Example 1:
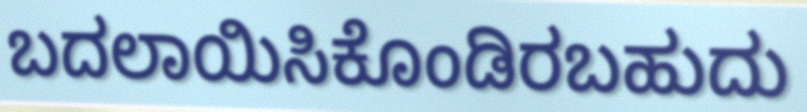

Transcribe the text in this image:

ಬದಲಾಯಿಸಿಕೊಂಡಿರಬಹುದು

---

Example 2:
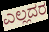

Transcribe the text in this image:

ಎಲ್ಲದರ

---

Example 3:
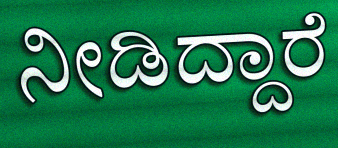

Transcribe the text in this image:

ನೀಡಿದ್ದಾರೆ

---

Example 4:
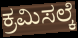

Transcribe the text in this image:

ಕ್ರಮಿಸಲ್ಕೆ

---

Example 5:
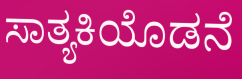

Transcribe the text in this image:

ಸಾತ್ಯಕಿಯೊಡನೆ